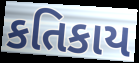
કતિકાય